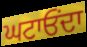
ਘਟਾਓਂਦਾ